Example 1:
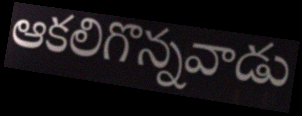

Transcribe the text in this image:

ఆకలిగొన్నవాడు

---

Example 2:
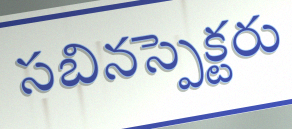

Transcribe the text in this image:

సబినస్పెక్టరు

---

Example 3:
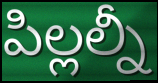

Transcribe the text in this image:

పిల్లల్నీ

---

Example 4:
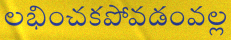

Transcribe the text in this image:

లభించకపోవడంవల్ల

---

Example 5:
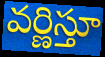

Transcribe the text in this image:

వర్ణిస్తూ